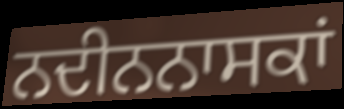
ਨਦੀਨਨਾਸਕਾਂ